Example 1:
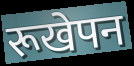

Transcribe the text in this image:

रूखेपन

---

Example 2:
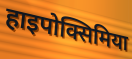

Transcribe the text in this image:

हाइपोक्सिमिया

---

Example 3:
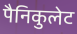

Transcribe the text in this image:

पैनिकुलेट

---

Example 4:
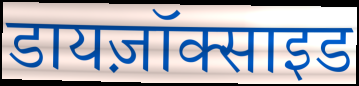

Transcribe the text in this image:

डायज़ॉक्साइड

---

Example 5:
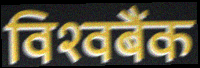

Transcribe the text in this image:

विश्वबैंक